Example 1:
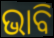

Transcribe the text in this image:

ଭାବି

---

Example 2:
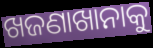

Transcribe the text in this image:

ଖଜଣାଖାନାକୁ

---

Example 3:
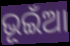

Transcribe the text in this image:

ଭୂଇଁଆ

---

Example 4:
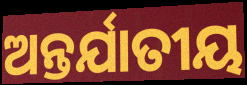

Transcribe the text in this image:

ଅନ୍ତର୍ଯାତୀୟ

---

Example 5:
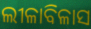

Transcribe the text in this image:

ଲୀଳାବିଳାସ